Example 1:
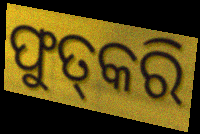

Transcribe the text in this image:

ଫୁତ୍‌କରି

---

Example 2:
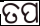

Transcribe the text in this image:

ତପ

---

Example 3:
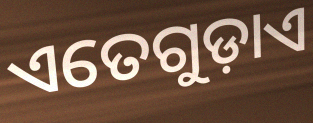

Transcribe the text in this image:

ଏତେଗୁଡ଼ାଏ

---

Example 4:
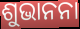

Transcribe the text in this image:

ଶୁଭାନନା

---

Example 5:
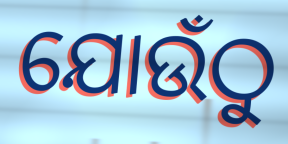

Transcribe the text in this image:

ଯୋଉଁଠୁ